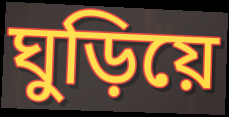
ঘুড়িয়ে